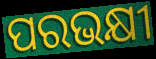
ପରଭକ୍ଷୀ